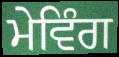
ਮੇਵਿੰਗ